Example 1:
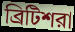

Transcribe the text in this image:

ব্রিটিশরা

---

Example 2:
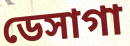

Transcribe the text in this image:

ডেসাগা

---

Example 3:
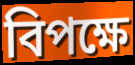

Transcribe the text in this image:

বিপক্ষে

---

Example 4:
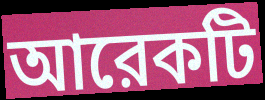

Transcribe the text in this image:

আরেকটি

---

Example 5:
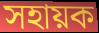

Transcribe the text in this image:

সহায়ক